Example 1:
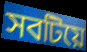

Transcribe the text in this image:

সবটিয়ে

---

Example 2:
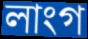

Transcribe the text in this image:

লাংগ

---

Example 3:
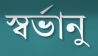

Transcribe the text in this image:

স্বর্ভানু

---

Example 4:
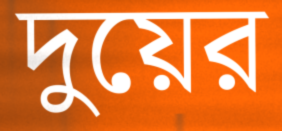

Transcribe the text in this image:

দুয়ের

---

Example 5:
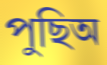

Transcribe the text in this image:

পুছিঅ